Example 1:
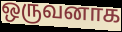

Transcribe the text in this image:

ஒருவனாக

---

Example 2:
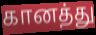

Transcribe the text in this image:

கானத்து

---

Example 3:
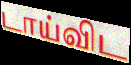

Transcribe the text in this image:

டாய்விட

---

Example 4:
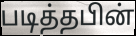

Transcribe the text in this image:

படித்தபின்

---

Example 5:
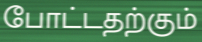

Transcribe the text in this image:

போட்டதற்கும்